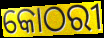
କୋଠରୀ